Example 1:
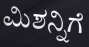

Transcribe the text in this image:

ಮಿಶನ್ನಿಗೆ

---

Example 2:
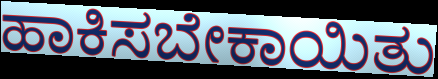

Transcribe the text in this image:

ಹಾಕಿಸಬೇಕಾಯಿತು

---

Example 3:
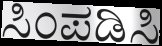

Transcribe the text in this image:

ಸಿಂಪಡಿಸಿ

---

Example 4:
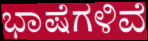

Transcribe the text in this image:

ಭಾಷೆಗಳಿವೆ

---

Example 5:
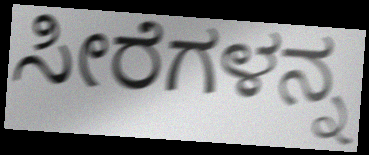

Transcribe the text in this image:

ಸೀರೆಗಳನ್ನ